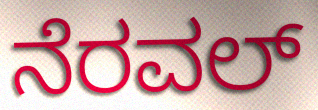
ನೆರವಲ್